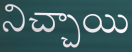
నిచ్చాయి